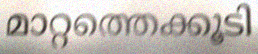
മാറ്റത്തെക്കൂടി